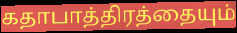
கதாபாத்திரத்தையும்